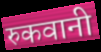
रुकवानी